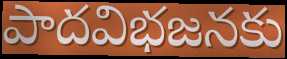
పాదవిభజనకు